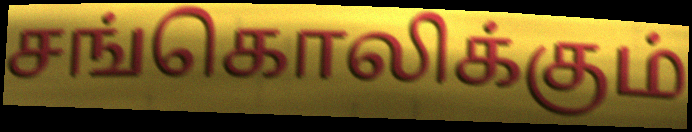
சங்கொலிக்கும்